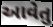
આવેતુ